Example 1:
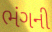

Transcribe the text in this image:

ભંગની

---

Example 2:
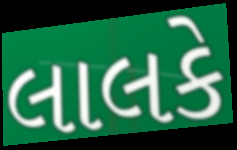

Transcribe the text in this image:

લાલકે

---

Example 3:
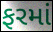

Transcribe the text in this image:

ફરમાં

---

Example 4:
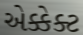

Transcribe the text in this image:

એક્કેક્ટ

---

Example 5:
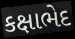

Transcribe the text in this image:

કક્ષાભેદ